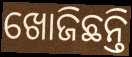
ଖୋଜିଛନ୍ତି